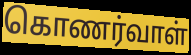
கொணர்வாள்